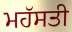
ਮਹੱਸਤੀ